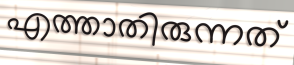
എത്താതിരുന്നത്